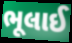
ભૂલાઈ